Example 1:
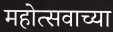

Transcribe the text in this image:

महोत्सवाच्या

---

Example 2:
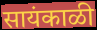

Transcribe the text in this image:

सायंकाळी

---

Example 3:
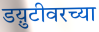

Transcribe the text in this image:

डय़ुटीवरच्या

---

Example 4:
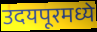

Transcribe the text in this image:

उदयपूरमध्ये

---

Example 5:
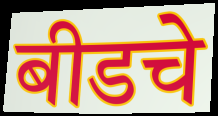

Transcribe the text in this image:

बीडचे